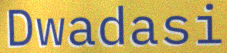
Dwadasi